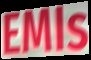
EMIs